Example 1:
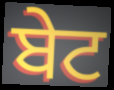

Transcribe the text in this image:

ਬੇਟ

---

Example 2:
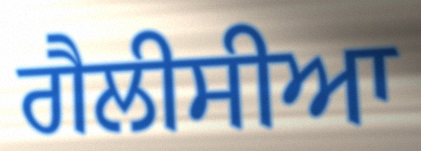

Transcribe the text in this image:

ਗੈਲੀਸੀਆ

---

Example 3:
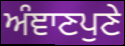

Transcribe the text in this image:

ਅੰਞਾਣਪੁਣੇ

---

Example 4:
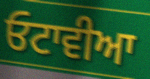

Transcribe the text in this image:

ਓਟਾਵੀਆ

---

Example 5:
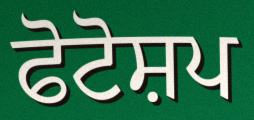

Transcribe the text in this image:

ਫੋਟੋਸ਼ਪ